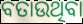
ବତାଉଥିବା